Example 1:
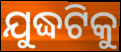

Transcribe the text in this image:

ଯୁଦ୍ଧଟିକୁ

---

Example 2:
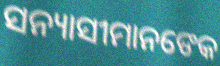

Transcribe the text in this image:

ସନ୍ୟାସୀମାନଙେକ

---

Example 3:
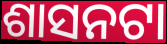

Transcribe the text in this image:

ଶାସନଟା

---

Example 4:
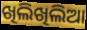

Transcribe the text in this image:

ଖିଲିଖିଲିଆ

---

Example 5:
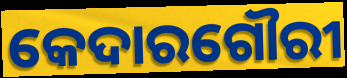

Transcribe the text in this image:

କେଦାରଗୌରୀ